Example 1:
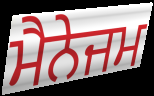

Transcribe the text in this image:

ਮੈਨੇਜਮ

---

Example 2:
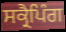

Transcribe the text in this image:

ਸਕ੍ਰੈਪਿੰਗ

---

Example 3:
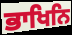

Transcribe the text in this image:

ਭਾਖਿਨਿ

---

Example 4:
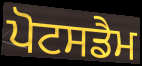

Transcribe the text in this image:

ਪੋਟਸਡੈਮ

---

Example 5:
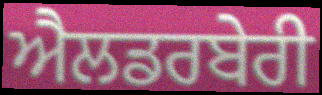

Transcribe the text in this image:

ਐਲਡਰਬੇਰੀ